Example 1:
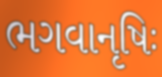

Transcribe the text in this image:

ભગવાનૃષિઃ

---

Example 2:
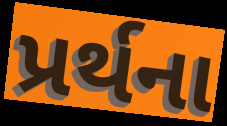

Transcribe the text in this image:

પ્રર્થના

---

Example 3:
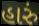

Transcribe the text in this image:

હારું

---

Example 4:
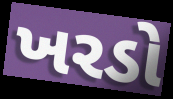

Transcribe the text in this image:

ખરડો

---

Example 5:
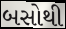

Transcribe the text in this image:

બસોથી